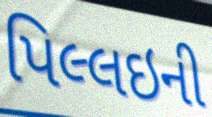
પિલ્લઇની